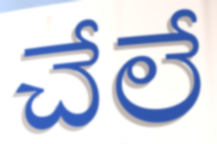
చేలే